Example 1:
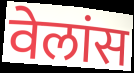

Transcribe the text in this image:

वेलांस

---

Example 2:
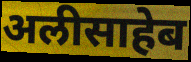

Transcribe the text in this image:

अलीसाहेब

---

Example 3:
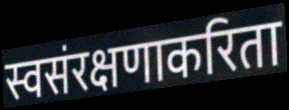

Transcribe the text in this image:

स्वसंरक्षणाकरिता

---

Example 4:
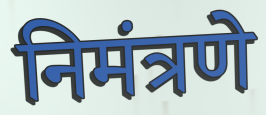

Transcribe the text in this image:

निमंत्रणे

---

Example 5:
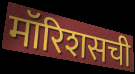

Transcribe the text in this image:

मॉरिशसची